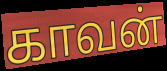
காவன்